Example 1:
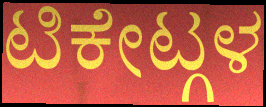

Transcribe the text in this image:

ಟಿಕೇಟ್ಗಳ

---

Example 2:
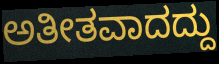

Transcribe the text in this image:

ಅತೀತವಾದದ್ದು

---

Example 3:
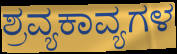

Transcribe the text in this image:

ಶ್ರವ್ಯಕಾವ್ಯಗಳ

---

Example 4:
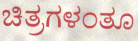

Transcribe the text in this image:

ಚಿತ್ರಗಳಂತೂ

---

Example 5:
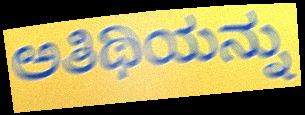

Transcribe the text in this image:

ಅತಿಥಿಯನ್ನು